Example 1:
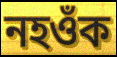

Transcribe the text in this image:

নহওঁক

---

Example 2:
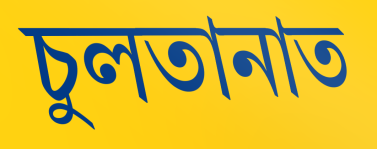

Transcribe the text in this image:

চুলতানাত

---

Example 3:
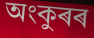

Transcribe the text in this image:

অংকুৰৰ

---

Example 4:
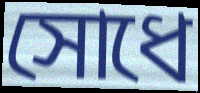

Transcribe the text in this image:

সোধে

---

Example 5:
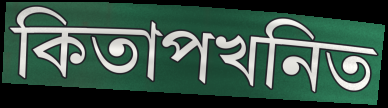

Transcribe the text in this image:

কিতাপখনিত